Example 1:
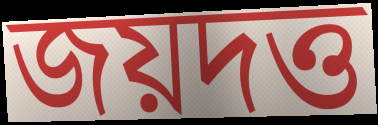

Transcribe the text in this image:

জয়দত্ত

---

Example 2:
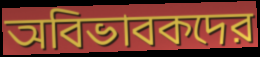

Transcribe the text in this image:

অবিভাবকদের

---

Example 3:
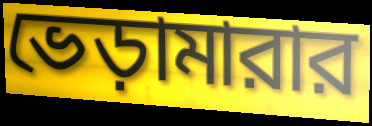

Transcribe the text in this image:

ভেড়ামারার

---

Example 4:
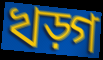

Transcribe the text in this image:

খড়্গ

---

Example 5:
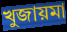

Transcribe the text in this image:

খুজায়মা